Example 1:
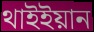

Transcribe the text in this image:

থাইইয়ান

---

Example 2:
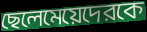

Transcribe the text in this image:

ছেলেমেয়েদেরকে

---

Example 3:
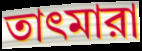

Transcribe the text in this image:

তাৎমারা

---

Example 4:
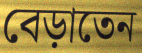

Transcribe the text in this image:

বেড়াতেন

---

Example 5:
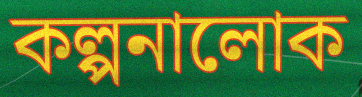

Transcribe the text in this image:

কল্পনালোক